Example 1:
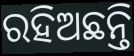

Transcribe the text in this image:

ରହିଅଛନ୍ତି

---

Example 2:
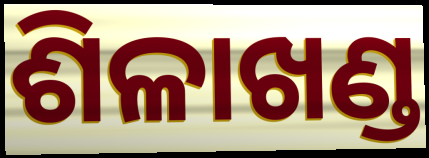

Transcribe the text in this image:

ଶିଳାଖଣ୍ଡ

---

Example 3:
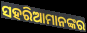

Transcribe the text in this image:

ସହରିଆମାନଙ୍କର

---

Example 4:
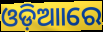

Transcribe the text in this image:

ଓଡ଼ିଆାରେ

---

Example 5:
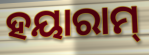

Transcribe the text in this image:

ହୟାରାମ୍